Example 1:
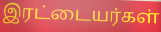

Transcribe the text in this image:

இரட்டையர்கள்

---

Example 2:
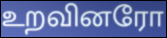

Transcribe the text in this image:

உறவினரோ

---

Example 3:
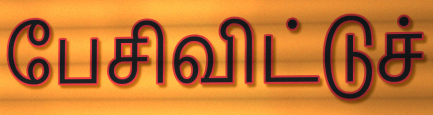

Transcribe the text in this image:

பேசிவிட்டுச்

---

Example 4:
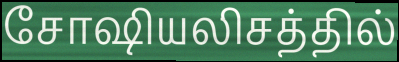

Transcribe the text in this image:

சோஷியலிசத்தில்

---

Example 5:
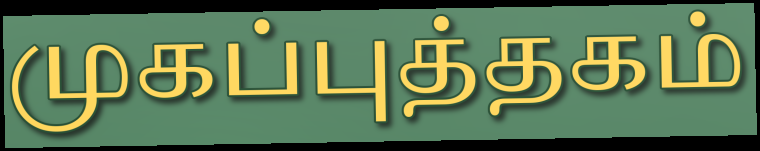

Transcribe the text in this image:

முகப்புத்தகம்